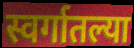
स्वर्गातल्या